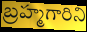
బ్రహ్మగారిని